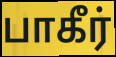
பாகீர்